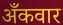
अँकवार